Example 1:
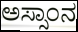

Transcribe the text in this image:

ಅಸ್ಸಾಂನ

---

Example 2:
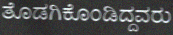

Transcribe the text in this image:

ತೊಡಗಿಕೊಂಡಿದ್ದವರು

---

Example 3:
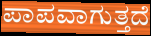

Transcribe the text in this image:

ಪಾಪವಾಗುತ್ತದೆ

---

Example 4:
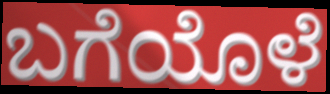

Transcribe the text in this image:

ಬಗೆಯೊಳೆ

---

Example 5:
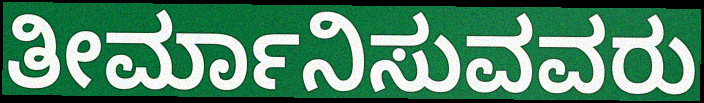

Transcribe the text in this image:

ತೀರ್ಮಾನಿಸುವವರು